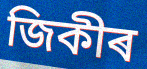
জিকীৰ